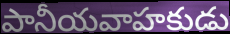
పానీయవాహకుడు